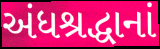
અંધશ્રદ્ધાનાં